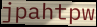
jpahtpw